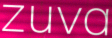
zuva